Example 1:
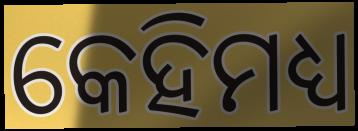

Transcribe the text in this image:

କେହିମଧ୍ୟ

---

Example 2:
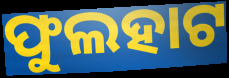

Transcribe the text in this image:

ଫୁଲହାଟ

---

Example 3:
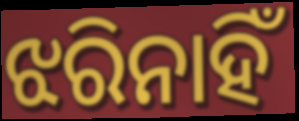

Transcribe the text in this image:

ଝରିନାହିଁ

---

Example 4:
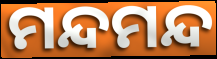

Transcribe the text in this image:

ମନ୍ଦମନ୍ଦ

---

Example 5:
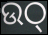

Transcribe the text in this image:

ଉଠ୍